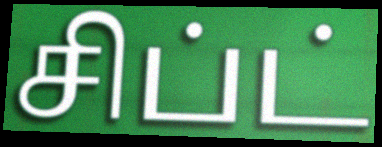
சிப்ட்